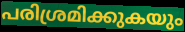
പരിശ്രമിക്കുകയും